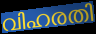
വിഹരതി